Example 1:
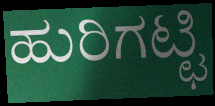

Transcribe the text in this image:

ಹುರಿಗಟ್ಟಿ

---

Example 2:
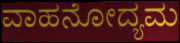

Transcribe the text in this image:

ವಾಹನೋದ್ಯಮ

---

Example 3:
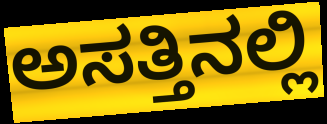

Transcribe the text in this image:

ಅಸತ್ತಿನಲ್ಲಿ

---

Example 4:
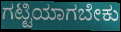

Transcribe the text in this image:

ಗಟ್ಟಿಯಾಗಬೇಕು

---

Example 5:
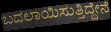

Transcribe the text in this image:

ಬದಲಾಯಿಸುತ್ತಿದ್ದೇನೆ